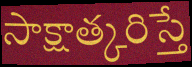
సాక్షాత్కరిస్తే